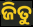
ଜିତୁ